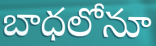
బాధలోనూ